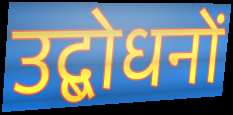
उद्बोधनों